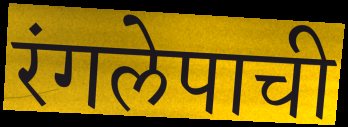
रंगलेपाची